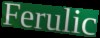
Ferulic